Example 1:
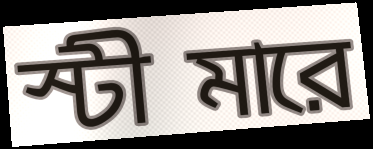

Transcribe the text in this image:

স্টীমারে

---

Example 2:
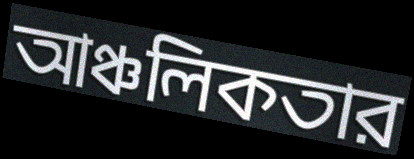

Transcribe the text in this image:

আঞ্চলিকতার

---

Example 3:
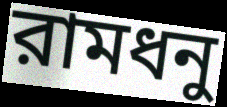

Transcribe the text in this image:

রামধনু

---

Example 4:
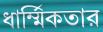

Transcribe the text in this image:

ধার্ম্মিকতার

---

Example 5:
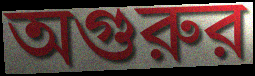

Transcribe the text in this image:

অগুরুর